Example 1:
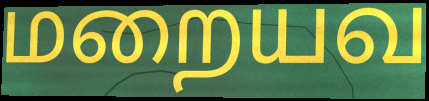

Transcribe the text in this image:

மறையவ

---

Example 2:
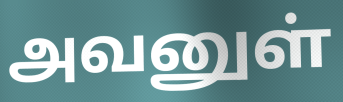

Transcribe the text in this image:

அவனுள்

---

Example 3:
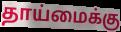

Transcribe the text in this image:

தாய்மைக்கு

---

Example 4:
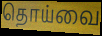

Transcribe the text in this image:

தொய்வை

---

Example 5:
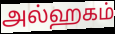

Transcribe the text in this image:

அல்ஹகம்